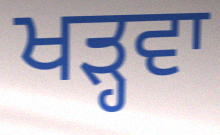
ਖੜ੍ਹਵਾ